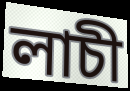
লাচী